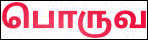
பொருவ